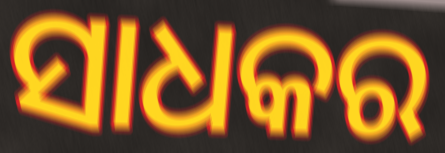
ସାଧକର